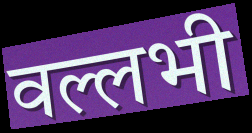
वल्लभी